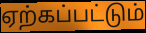
ஏற்கப்பட்டும்